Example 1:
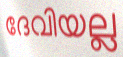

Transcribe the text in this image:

ദേവിയല്ല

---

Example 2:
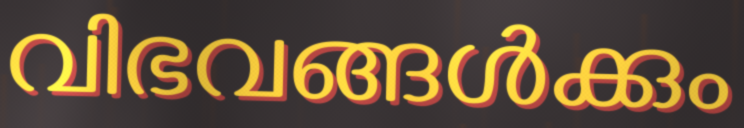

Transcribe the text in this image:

വിഭവങ്ങൾക്കും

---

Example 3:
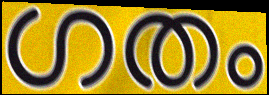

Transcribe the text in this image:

ഗതം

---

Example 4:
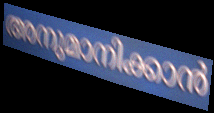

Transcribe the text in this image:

അനുമാനിക്കാൻ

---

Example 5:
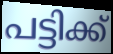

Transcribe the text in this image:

പട്ടിക്ക്